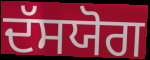
ਦੱਸਯੋਗ